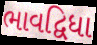
ભાવદ્વિધા